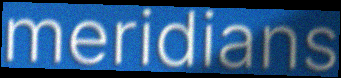
meridians